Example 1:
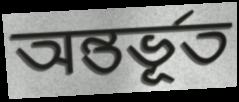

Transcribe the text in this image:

অন্তর্ভূত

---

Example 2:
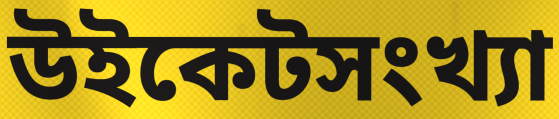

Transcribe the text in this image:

উইকেটসংখ্যা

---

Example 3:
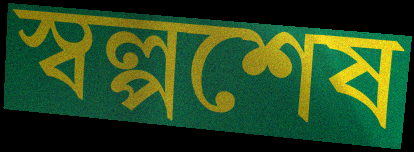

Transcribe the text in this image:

স্বল্পশেষ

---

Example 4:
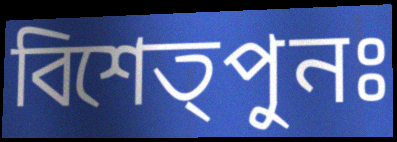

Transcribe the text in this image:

বিশেত্পুনঃ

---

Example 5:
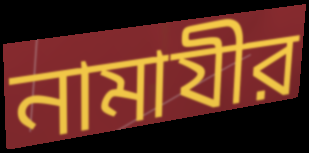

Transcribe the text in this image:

নামাযীর